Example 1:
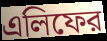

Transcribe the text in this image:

এলিফের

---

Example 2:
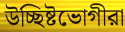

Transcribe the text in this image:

উচ্ছিষ্টভোগীরা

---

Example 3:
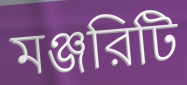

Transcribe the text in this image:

মঞ্জরিটি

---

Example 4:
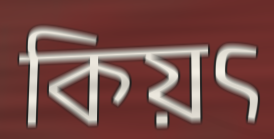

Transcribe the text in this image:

কিয়ৎ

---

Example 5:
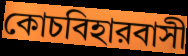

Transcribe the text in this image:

কোচবিহারবাসী